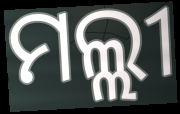
ମଲ୍ଲୀ